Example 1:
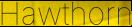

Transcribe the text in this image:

Hawthorn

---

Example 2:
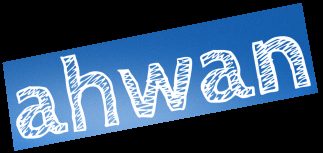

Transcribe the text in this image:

ahwan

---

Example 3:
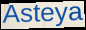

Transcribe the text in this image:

Asteya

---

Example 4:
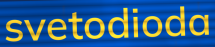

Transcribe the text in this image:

svetodioda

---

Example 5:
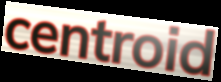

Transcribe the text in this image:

centroid